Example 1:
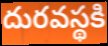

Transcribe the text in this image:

దురవస్థకి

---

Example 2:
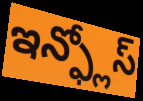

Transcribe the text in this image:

ఇన్ఫ్లోస్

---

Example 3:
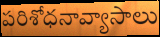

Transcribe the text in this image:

పరిశోధనావ్యాసాలు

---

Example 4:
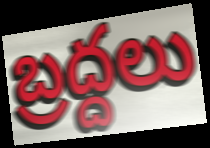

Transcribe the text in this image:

బ్రద్దలు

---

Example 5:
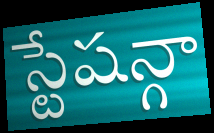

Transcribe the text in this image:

స్టేషన్గా